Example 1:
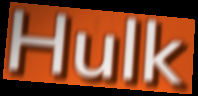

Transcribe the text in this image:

Hulk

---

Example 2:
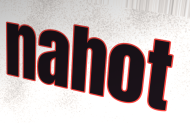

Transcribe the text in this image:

nahot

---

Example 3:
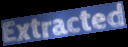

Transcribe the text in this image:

Extracted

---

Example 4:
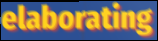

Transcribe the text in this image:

elaborating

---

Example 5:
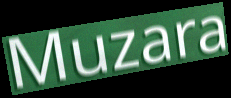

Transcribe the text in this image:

Muzara